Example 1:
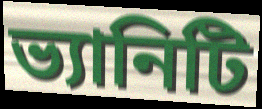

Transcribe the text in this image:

ভ্যানিটি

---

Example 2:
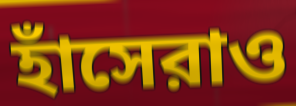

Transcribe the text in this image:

হাঁসেরাও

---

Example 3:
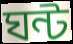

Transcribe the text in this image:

ঘন্ট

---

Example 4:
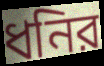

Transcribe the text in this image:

ধনির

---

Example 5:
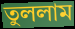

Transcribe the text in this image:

তুললাম